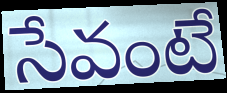
సేవంటే